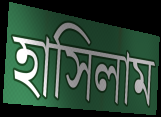
হাসিলাম